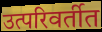
उत्परिवर्तीत